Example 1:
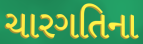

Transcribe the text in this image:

ચારગતિના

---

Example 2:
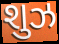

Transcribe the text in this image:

શુઝ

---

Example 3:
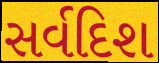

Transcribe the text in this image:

સર્વદિશ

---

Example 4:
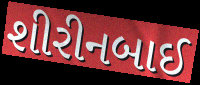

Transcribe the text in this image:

શીરીનબાઈ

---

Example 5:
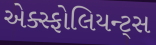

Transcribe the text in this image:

એક્સ્ફોલિયન્ટ્સ